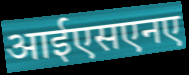
आईएसएनए